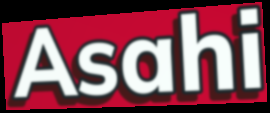
Asahi